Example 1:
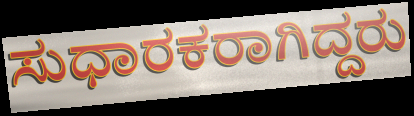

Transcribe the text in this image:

ಸುಧಾರಕರಾಗಿದ್ದರು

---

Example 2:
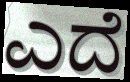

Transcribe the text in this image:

ಎದೆ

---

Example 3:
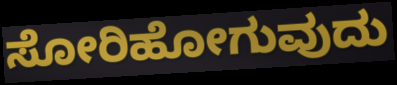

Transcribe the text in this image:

ಸೋರಿಹೋಗುವುದು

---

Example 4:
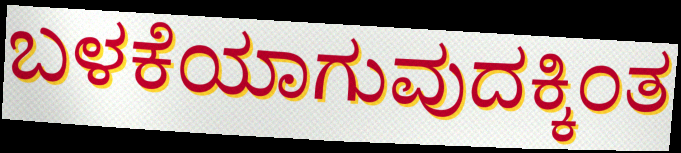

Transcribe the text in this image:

ಬಳಕೆಯಾಗುವುದಕ್ಕಿಂತ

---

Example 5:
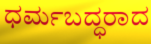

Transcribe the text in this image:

ಧರ್ಮಬದ್ಧರಾದ